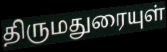
திருமதுரையுள்